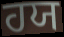
ਹਯ